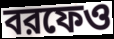
বরফেও